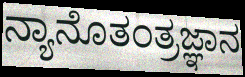
ನ್ಯಾನೊತಂತ್ರಜ್ಞಾನ